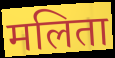
मलिता